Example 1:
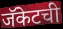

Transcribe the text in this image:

जॅकेटची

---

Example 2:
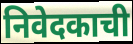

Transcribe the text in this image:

निवेदकाची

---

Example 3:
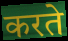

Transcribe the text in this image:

करते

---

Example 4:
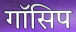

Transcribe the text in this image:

गॉसिप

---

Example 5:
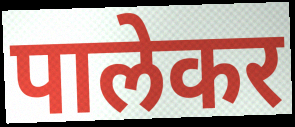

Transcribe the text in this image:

पालेकर